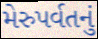
મેરુપર્વતનું